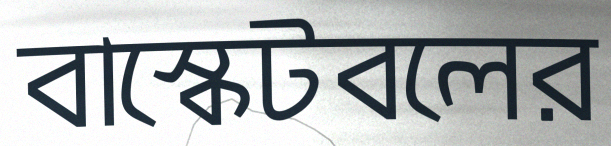
বাস্কেটবলের